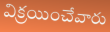
విక్రయించేవారు